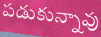
పడుకున్నావు